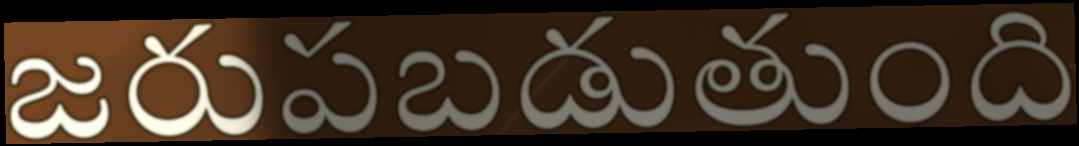
జరుపబడుతుంది